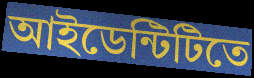
আইডেন্টিটিতে